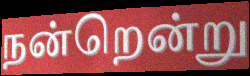
நன்றென்று